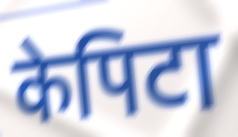
केपिटा